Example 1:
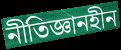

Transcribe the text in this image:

নীতিজ্ঞানহীন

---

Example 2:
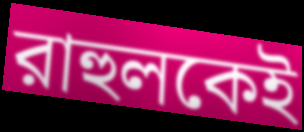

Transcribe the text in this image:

রাহুলকেই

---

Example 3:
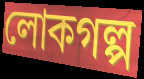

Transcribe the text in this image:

লোকগল্প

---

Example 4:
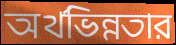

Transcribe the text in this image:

অর্থভিন্নতার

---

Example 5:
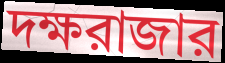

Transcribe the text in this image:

দক্ষরাজার